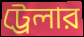
ট্রেলার